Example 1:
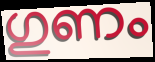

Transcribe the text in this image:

ഗുണം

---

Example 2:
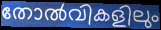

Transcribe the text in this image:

തോൽവികളിലും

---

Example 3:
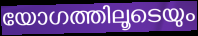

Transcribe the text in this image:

യോഗത്തിലൂടെയും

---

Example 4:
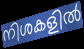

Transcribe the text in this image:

നിശകളിൽ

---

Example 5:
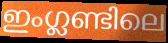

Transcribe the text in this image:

ഇംഗ്ലണ്ടിലെ